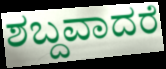
ಶಬ್ದವಾದರೆ